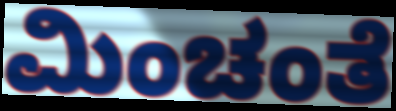
ಮಿಂಚಂತೆ